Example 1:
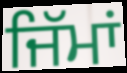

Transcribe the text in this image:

ਜਿੱਮਾਂ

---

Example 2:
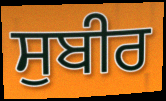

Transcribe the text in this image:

ਸੁਬੀਰ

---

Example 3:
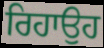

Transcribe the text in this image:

ਰਿਹਾਉਹ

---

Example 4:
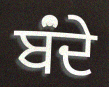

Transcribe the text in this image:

ਬਂੰਦੇ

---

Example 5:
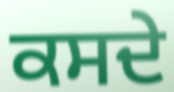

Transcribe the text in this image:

ਕਸਦੇ